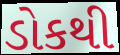
ડોકથી